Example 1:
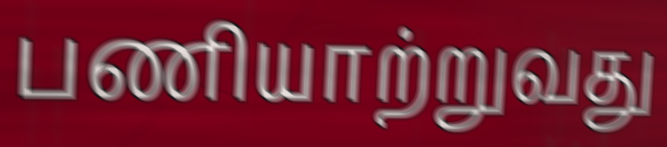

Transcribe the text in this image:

பணியாற்றுவது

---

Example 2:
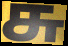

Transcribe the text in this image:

சு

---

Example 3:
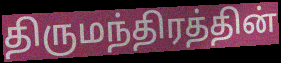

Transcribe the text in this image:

திருமந்திரத்தின்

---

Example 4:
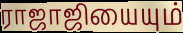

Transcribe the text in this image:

ராஜாஜியையும்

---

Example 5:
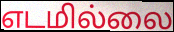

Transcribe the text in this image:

எடமில்லை